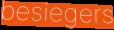
besiegers